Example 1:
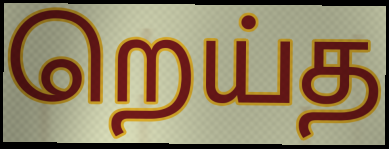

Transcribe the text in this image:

றெய்த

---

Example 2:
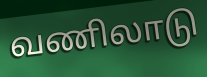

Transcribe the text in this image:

வணிலாடு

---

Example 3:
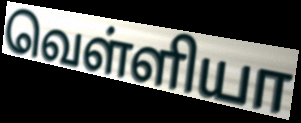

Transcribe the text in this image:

வெள்ளியா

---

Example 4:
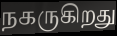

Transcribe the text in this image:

நகருகிறது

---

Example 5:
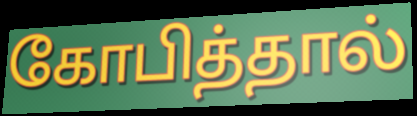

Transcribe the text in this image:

கோபித்தால்